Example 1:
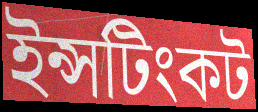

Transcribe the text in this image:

ইন্সটিংকট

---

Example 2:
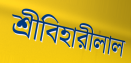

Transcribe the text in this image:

শ্রীবিহারীলাল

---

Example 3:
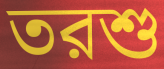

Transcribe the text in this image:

তরশু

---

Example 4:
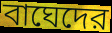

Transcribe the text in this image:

বাঘেদের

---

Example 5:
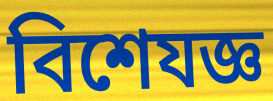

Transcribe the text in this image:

বিশেযজ্ঞ